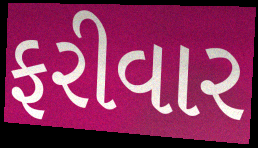
ફરીવાર